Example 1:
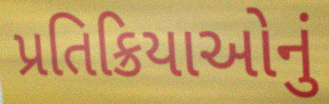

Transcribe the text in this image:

પ્રતિક્રિયાઓનું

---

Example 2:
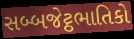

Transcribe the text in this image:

સબ્બજેટ્ઠભાતિકો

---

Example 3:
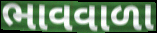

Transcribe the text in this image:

ભાવવાળા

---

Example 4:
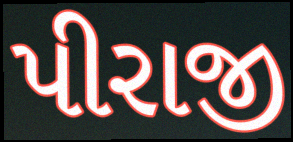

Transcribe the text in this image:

પીરાજી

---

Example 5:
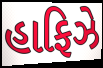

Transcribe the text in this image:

હાફિઝે